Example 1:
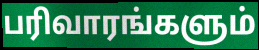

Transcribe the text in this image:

பரிவாரங்களும்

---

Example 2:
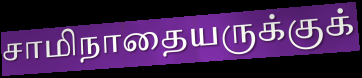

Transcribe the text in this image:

சாமிநாதையருக்குக்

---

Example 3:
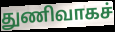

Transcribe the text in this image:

துணிவாகச்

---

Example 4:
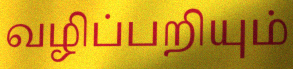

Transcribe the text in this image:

வழிப்பறியும்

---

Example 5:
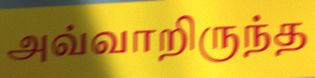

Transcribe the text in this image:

அவ்வாறிருந்த